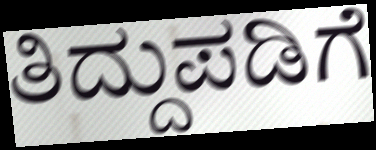
ತಿದ್ದುಪಡಿಗೆ